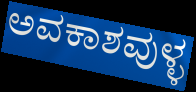
ಅವಕಾಶವುಳ್ಳ